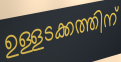
ഉള്ളടക്കത്തിന്